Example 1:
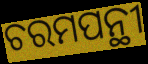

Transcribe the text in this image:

ଚରମପନ୍ଥୀ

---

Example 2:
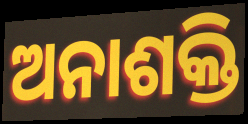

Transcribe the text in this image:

ଅନାଶକ୍ତି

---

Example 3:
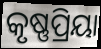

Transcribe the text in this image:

କୃଷ୍ଣପ୍ରିୟା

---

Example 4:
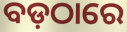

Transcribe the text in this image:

ବଡ଼ଠାରେ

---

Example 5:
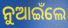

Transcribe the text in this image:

ନୁଆଇଁଲେ